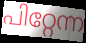
പിറ്റേന്ന